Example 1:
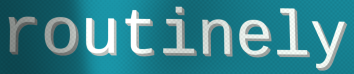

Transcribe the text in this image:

routinely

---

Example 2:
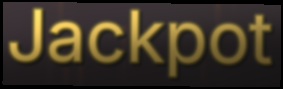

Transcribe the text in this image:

Jackpot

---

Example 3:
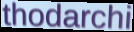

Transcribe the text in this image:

thodarchi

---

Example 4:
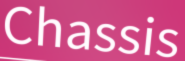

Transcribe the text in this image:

Chassis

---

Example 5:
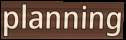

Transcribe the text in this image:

planning